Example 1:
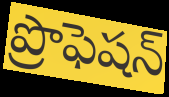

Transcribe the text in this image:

ప్రొఫెషన్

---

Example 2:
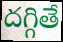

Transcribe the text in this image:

దగ్గితే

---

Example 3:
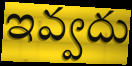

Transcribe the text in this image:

ఇవ్వదు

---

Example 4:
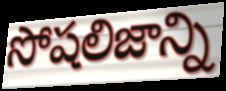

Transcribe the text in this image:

సోషలిజాన్ని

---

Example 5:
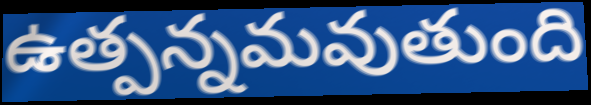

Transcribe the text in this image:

ఉత్పన్నమవుతుంది